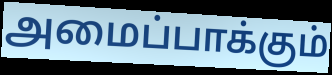
அமைப்பாக்கும்